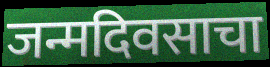
जन्मदिवसाचा